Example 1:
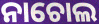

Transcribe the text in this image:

ନାଚୋଲ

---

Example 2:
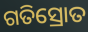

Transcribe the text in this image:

ଗତିସ୍ରୋତ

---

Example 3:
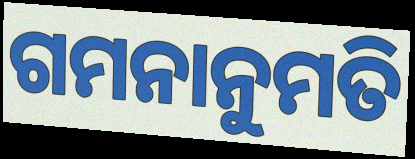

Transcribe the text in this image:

ଗମନାନୁମତି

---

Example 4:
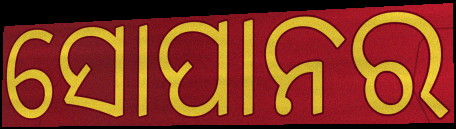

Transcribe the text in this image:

ସୋପାନର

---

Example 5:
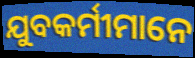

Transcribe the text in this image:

ଯୁବକର୍ମୀମାନେ